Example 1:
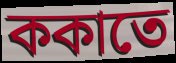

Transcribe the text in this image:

ককাতে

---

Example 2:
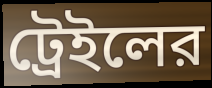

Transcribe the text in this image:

ট্রেইলের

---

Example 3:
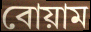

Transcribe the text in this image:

বোয়াম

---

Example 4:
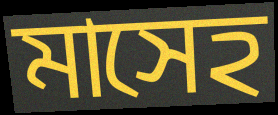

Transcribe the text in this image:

মাসেহ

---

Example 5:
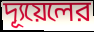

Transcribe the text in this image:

দ্যূয়েলের